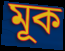
মূক